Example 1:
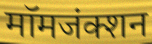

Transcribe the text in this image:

मॉमजंक्शन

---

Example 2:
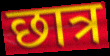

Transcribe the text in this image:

छात्र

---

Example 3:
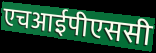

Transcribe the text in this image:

एचआईपीएससी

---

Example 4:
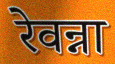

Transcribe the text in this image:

रेवन्ना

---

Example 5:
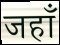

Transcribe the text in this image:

जहाँ